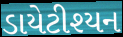
ડાયેટીશ્યન